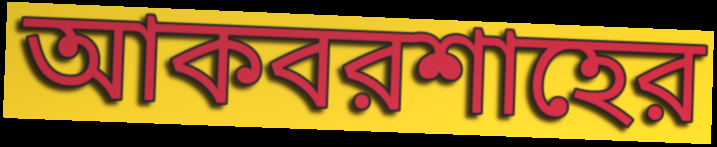
আকবরশাহের